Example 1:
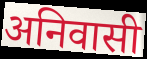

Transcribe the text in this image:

अनिवासी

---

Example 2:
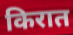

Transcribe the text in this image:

किरात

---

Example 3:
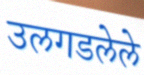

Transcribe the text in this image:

उलगडलेले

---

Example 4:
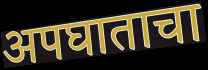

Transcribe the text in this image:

अपघाताचा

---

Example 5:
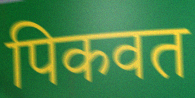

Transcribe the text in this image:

पिकवत